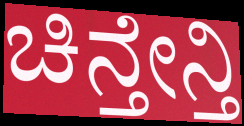
ಚಿನ್ತೇನ್ತಿ